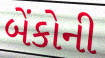
બેંકોની